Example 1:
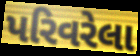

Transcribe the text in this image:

પરિવરેલા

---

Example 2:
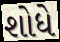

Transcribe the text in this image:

શોધે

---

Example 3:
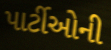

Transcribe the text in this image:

પાર્ટીઓની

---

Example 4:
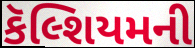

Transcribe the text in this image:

કૅલ્શિયમની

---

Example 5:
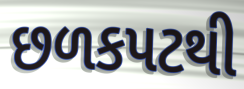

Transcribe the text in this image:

છળકપટથી